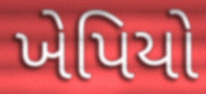
ખેપિયો